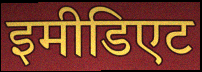
इमीडिएट